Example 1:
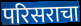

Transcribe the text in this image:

परिसराचा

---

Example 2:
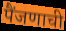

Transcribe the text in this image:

पैंजणाची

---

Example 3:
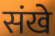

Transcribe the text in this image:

संखे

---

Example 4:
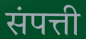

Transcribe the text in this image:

संपत्ती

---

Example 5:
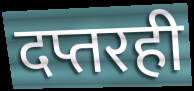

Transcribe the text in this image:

दप्तरही